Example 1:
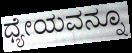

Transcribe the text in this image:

ಧ್ಯೇಯವನ್ನೂ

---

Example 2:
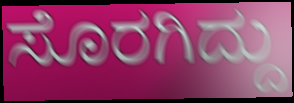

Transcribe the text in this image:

ಸೊರಗಿದ್ದು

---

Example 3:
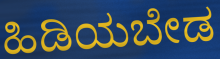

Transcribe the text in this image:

ಹಿಡಿಯಬೇಡ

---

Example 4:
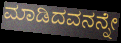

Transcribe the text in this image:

ಮಾಡಿದವನನ್ನೇ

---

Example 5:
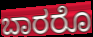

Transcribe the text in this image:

ಬಾರರೊ